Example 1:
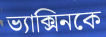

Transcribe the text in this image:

ভ্যাক্সিনকে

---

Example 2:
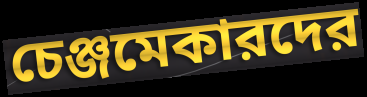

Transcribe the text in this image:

চেঞ্জমেকারদের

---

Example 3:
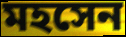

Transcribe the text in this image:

মহসেন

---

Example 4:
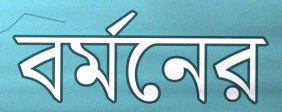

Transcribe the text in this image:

বর্মনের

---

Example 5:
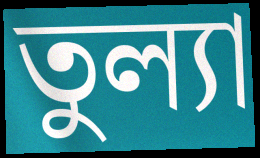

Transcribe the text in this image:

তুল্যা